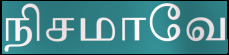
நிசமாவே